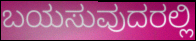
ಬಯಸುವುದರಲ್ಲಿ